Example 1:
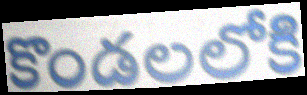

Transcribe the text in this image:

కొండలలోకి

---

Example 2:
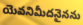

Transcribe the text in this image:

యెవనిమీదనైనను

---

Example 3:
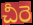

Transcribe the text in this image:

చీరె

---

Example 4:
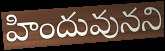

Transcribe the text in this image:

హిందువునని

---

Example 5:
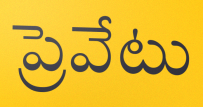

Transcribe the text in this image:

ప్రెవేటు